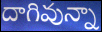
దాగివున్నా